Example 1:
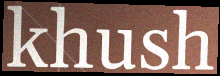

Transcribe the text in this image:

khush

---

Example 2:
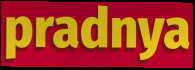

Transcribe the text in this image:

pradnya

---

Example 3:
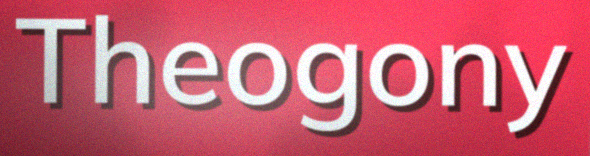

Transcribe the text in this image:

Theogony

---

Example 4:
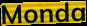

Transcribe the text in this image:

Monda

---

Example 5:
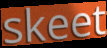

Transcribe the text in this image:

skeet